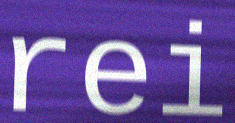
rei